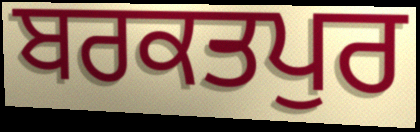
ਬਰਕਤਪੁਰ